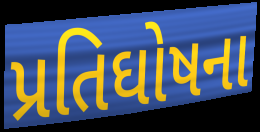
પ્રતિઘોષના